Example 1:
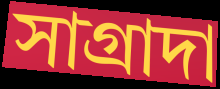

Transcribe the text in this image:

সাগ্রাদা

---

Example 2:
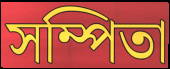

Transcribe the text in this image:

সম্পিতা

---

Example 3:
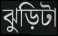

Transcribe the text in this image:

ঝুড়িটা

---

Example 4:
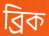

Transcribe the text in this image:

ব্রিক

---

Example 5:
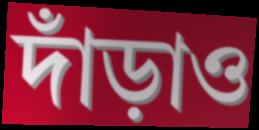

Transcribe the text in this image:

দাঁড়াও